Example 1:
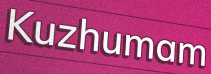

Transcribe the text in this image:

Kuzhumam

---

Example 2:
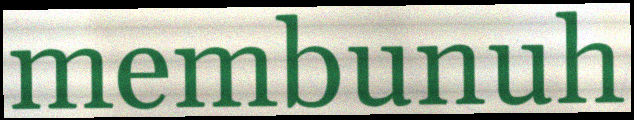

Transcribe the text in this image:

membunuh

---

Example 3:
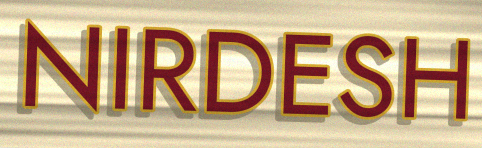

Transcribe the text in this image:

NIRDESH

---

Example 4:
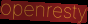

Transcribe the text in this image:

openresty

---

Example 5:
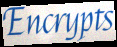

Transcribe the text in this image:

Encrypts